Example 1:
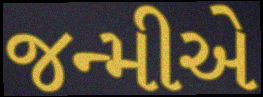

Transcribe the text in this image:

જન્મીએ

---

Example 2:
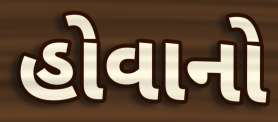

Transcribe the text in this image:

હોવાનો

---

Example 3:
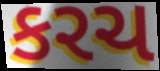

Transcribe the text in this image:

કરચ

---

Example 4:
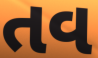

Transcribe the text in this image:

તવ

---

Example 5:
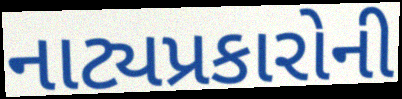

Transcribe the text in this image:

નાટ્યપ્રકારોની